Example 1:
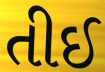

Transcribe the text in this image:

તીઈ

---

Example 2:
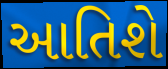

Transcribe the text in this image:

આતિશે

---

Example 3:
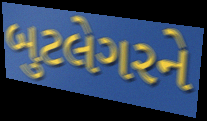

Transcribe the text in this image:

બુટલેગરને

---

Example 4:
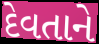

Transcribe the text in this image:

દેવતાને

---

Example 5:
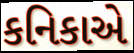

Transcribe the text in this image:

કનિકાએ